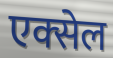
एक्‍सेल